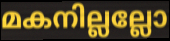
മകനില്ലല്ലോ